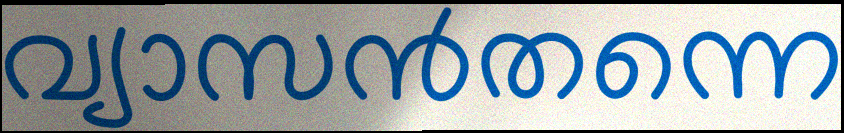
വ്യാസൻതന്നെ